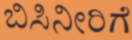
ಬಿಸಿನೀರಿಗೆ